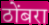
ठोंबरा